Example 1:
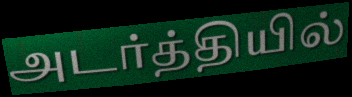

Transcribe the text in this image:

அடர்த்தியில்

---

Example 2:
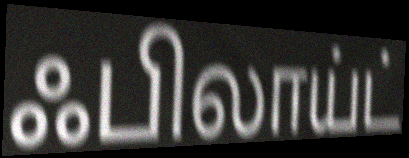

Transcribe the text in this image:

ஃபிலாய்ட்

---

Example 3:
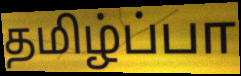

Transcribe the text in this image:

தமிழ்ப்பா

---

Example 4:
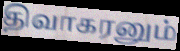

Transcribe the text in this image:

திவாகரனும்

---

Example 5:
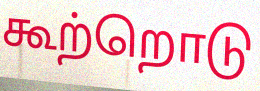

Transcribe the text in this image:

கூற்றொடு